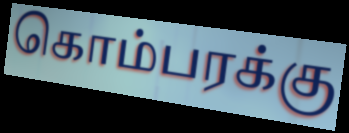
கொம்பரக்கு